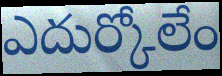
ఎదుర్కోలేం